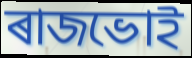
ৰাজভোই